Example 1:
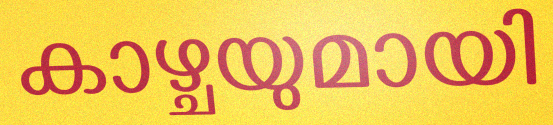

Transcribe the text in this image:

കാഴ്ചയുമായി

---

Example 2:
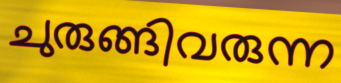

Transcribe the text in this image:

ചുരുങ്ങിവരുന്ന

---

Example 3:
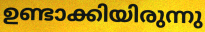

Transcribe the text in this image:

ഉണ്ടാക്കിയിരുന്നു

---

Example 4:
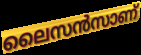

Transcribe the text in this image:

ലൈസൻസാണ്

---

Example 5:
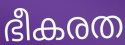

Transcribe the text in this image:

ഭീകരത